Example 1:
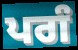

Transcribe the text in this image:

ਪਗੰ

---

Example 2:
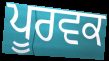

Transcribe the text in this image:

ਪੂਰਵਕ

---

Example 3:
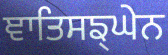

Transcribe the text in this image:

ਞਾਤਿਸਙ੍ਘੇਨ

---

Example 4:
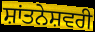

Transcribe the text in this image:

ਸ਼ਾਂਤਨੇਸ਼ਵਰੀ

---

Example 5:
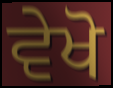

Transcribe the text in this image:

ਵੇਖੋ